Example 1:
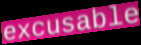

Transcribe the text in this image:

excusable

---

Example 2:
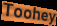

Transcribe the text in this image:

Toohey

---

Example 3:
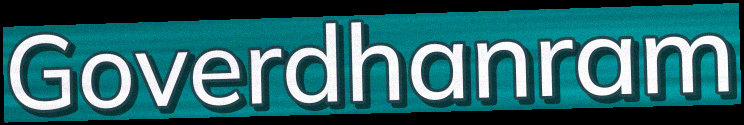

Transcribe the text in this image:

Goverdhanram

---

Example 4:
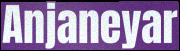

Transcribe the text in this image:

Anjaneyar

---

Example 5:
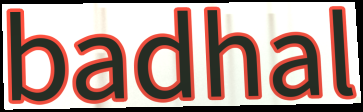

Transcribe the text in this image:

badhal